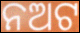
ନଅଟ